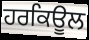
ਹਰਕਿਊਲ